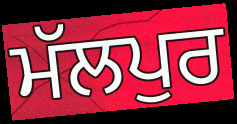
ਮੱਲਪੁਰ